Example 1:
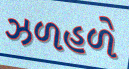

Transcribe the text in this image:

ઝળહળે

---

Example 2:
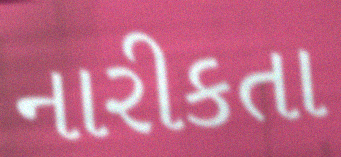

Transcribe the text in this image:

નારીકતા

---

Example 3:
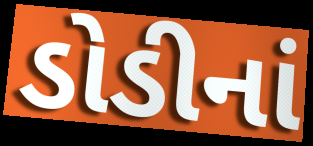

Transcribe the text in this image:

ડોડીનાં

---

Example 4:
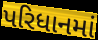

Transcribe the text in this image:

પરિધાનમાં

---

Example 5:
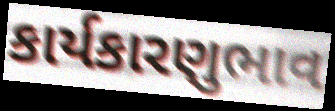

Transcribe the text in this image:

કાર્યકારણુભાવ